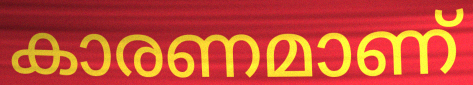
കാരണമാണ്